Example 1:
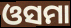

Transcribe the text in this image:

ଓସମା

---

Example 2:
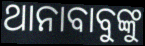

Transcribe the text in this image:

ଥାନାବାବୁଙ୍କୁ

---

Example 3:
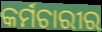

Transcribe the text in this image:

କର୍ମଚାରୀର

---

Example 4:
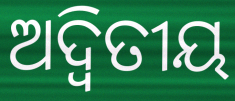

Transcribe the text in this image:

ଅଦ୍ଵିତୀୟ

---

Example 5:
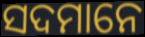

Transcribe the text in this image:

ସଦମାନେ